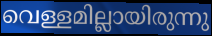
വെള്ളമില്ലായിരുന്നു